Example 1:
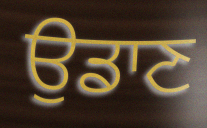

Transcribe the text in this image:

ਉਡਾਣ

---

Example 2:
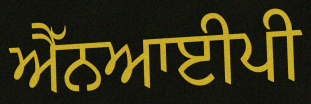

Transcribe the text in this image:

ਐੱਨਆਈਪੀ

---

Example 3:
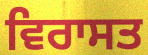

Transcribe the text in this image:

ਵਿਰਾਸਤ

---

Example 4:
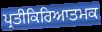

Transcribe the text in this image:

ਪ੍ਰਤੀਕਿਰਿਆਤਮਕ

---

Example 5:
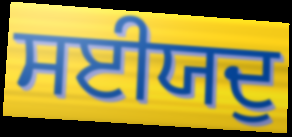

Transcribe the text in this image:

ਸਈਯਦੁ